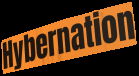
Hybernation